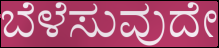
ಬೆಳೆಸುವುದೇ